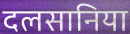
दलसानिया